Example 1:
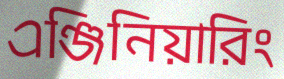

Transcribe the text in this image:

এঞ্জিনিয়ারিং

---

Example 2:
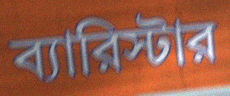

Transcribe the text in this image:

ব্যারিস্টার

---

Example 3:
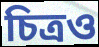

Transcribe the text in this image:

চিত্রও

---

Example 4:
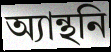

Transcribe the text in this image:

অ্যান্থনি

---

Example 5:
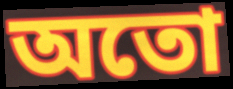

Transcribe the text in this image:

অতো